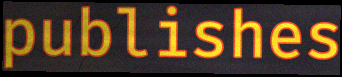
publishes